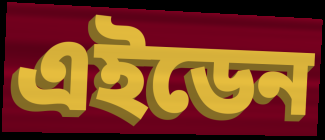
এইডেন